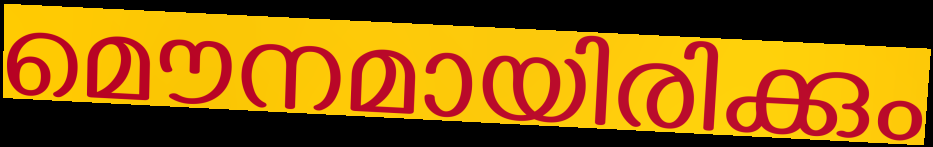
മൌനമായിരിക്കും